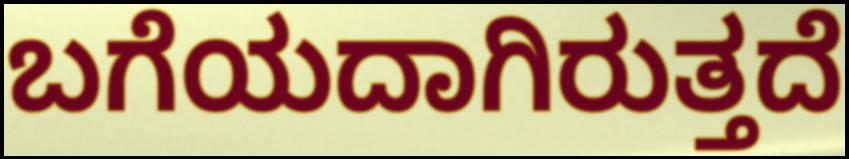
ಬಗೆಯದಾಗಿರುತ್ತದೆ